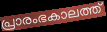
പ്രാരംഭകാലത്ത്